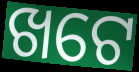
ଖଟେ